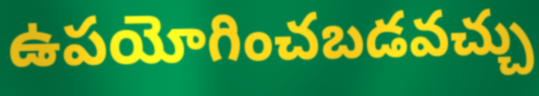
ఉపయోగించబడవచ్చు